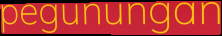
pegunungan